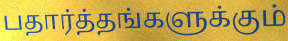
பதார்த்தங்களுக்கும்